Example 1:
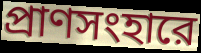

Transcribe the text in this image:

প্রাণসংহারে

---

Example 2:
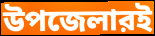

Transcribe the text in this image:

উপজেলারই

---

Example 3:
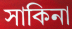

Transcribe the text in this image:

সাকিনা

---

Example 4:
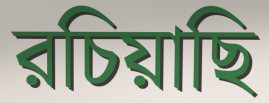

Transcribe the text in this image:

রচিয়াছি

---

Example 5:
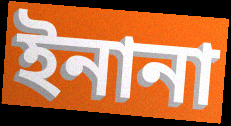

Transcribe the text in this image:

ইনানা